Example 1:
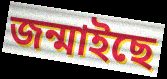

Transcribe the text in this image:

জন্মাইছে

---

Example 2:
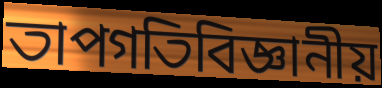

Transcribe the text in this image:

তাপগতিবিজ্ঞানীয়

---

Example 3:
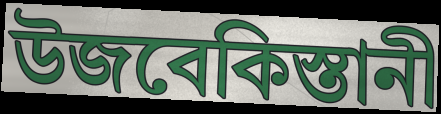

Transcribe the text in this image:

উজবেকিস্তানী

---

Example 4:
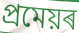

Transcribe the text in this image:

প্ৰমেয়ৰ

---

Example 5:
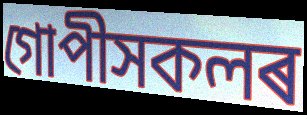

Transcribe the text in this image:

গোপীসকলৰ